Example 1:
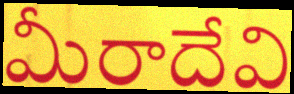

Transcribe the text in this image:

మీరాదేవి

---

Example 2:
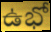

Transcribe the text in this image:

ఉభో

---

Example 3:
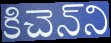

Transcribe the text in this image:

కిచెన్‌ని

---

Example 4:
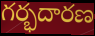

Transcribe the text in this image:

గర్భదారణ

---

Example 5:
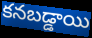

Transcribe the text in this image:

కనబడ్డాయి